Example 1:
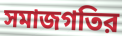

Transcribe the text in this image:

সমাজগতির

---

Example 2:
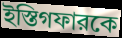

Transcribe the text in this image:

ইস্তিগফারকে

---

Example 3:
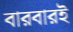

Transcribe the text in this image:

বারবারই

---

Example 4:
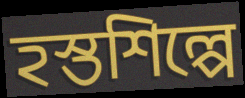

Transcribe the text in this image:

হস্তশিল্পে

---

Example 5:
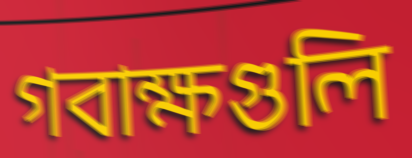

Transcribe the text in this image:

গবাক্ষগুলি